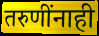
तरुणींनाही